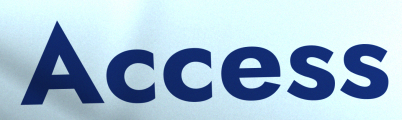
Access